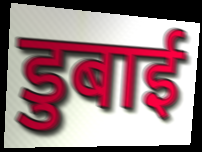
डुबाई